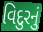
વિદુરનું